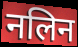
नलिन